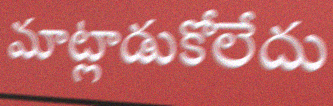
మాట్లాడుకోలేదు